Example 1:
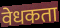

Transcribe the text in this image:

वेधकता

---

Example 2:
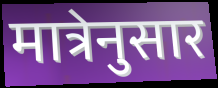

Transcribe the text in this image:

मात्रेनुसार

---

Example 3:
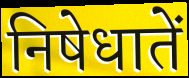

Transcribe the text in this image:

निषेधातें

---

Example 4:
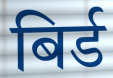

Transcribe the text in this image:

बिर्ड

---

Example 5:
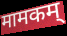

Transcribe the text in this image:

मामकम्